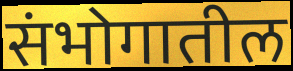
संभोगातील